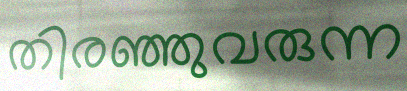
തിരഞ്ഞുവരുന്ന